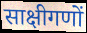
साक्षीगणों